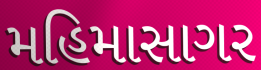
મહિમાસાગર